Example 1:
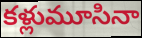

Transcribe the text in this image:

కళ్లుమూసినా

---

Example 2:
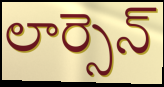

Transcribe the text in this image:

లార్సెన్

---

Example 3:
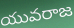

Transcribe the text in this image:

యువరాజ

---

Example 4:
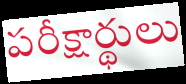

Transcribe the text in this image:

పరీక్షార్థులు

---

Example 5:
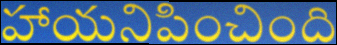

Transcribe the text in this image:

హాయనిపించింది